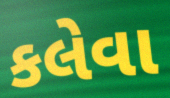
કલેવા